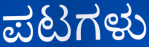
ಪಟಗಳು